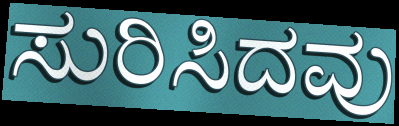
ಸುರಿಸಿದವು